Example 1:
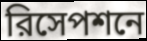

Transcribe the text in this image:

রিসেপশনে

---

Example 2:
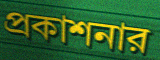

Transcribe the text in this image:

প্রকাশনার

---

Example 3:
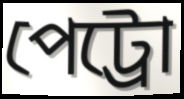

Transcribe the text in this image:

পেট্রো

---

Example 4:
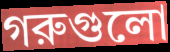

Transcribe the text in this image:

গরুগুলো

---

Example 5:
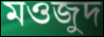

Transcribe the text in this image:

মওজুদ